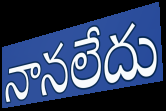
నానలేదు